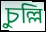
চুল্লি